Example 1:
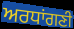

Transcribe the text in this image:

ਅਰਧਾਂਗਣੀ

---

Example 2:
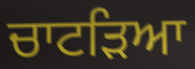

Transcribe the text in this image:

ਚਾਟੜਿਆ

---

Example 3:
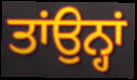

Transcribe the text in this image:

ਤਾਂਉਨ੍ਹਾਂ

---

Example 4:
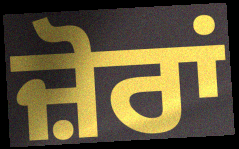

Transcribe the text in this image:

ਜ਼ੋਰਾਂ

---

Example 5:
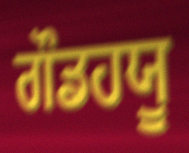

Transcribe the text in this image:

ਗੌਡਹਯੂ